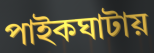
পাইকঘাটায়